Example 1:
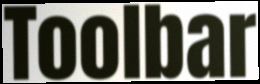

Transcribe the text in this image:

Toolbar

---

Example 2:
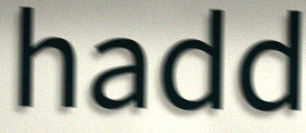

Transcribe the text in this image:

hadd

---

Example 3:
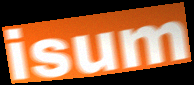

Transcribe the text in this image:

isum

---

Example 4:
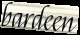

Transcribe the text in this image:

bardeen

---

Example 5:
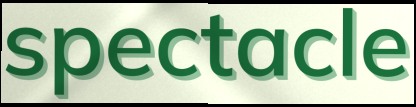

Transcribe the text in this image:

spectacle